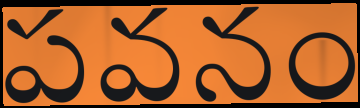
పవనం